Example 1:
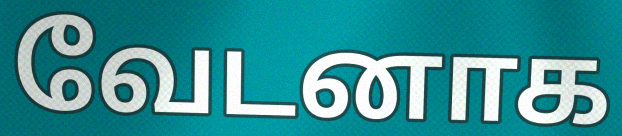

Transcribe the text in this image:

வேடனாக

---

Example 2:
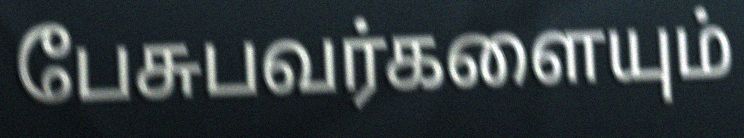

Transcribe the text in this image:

பேசுபவர்களையும்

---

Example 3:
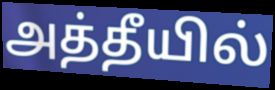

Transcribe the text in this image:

அத்தீயில்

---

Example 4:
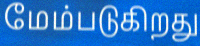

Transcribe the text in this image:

மேம்படுகிறது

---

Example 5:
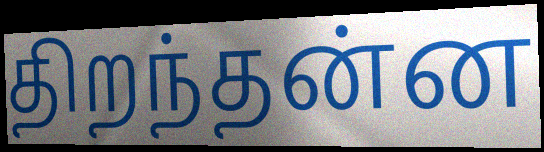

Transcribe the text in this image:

திறந்தன்ன